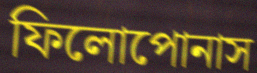
ফিলোপোনাস